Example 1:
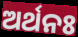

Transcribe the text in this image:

ଅର୍ଥନଃ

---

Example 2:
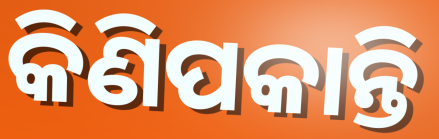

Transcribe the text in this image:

କିଣିପକାନ୍ତି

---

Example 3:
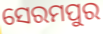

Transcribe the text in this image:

ସେରମପୁର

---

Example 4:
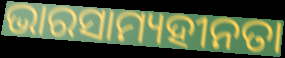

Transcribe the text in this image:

ଭାରସାମ୍ୟହୀନତା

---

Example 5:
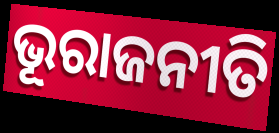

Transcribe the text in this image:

ଭୂରାଜନୀତି